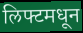
लिफ्टमधून